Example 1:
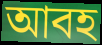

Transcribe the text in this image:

আবহ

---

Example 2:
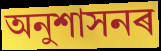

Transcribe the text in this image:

অনুশাসনৰ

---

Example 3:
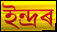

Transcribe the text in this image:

ইন্দ্ৰৰ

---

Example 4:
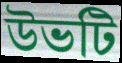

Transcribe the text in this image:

উভটি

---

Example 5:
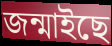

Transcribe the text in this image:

জন্মাইছে